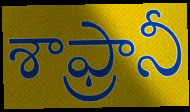
శాఫ్రానీ